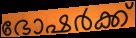
ഭോഷർക്ക്